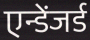
एन्डेंजर्ड